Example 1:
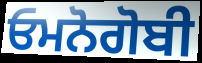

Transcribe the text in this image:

ਓਮਨੋਗੋਬੀ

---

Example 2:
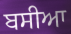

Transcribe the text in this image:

ਬਸੀਆ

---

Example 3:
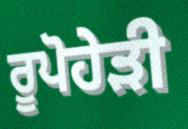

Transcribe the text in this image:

ਰੂਪੋਹੇੜੀ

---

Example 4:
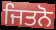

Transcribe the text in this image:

ਜਿਤਨੋ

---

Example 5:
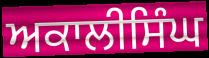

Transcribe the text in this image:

ਅਕਾਲੀਸਿੰਘ